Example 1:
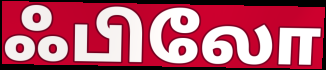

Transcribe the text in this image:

ஃபிலோ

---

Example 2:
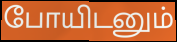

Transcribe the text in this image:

போயிடனும்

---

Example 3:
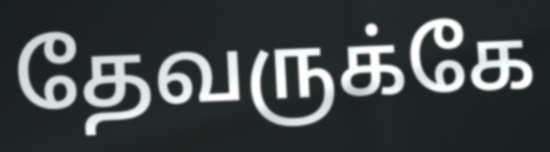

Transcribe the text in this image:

தேவருக்கே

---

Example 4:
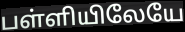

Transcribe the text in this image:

பள்ளியிலேயே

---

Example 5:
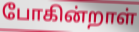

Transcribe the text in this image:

போகின்றாள்